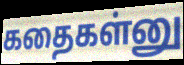
கதைகள்னு